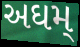
અઘમ્